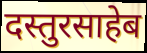
दस्तुरसाहेब